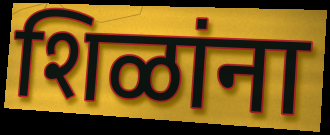
शिळांना